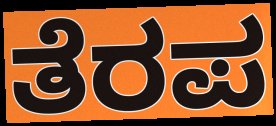
ತೆರಪ